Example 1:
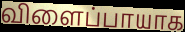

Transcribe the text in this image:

விளைப்பாயாக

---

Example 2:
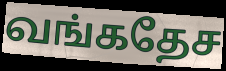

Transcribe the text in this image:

வங்கதேச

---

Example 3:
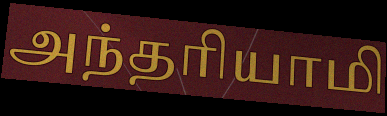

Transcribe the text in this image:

அந்தரியாமி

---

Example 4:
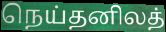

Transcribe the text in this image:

நெய்தனிலத்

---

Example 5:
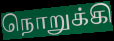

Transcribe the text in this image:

நொறுக்கி